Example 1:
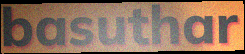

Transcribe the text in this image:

basuthar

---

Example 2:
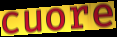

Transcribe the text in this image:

cuore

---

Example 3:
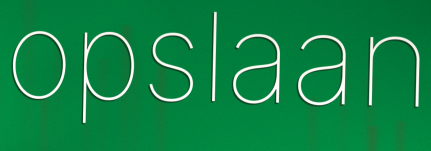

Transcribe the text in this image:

opslaan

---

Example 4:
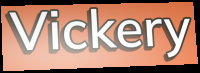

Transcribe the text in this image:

Vickery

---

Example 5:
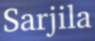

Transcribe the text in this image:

Sarjila